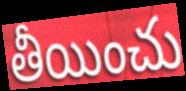
తీయించు